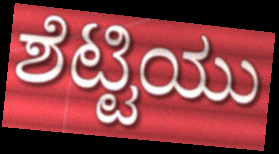
ಶೆಟ್ಟಿಯು